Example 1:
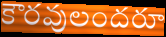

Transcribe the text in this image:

కౌరవులందరూ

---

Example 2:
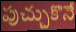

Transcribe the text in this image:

పుచ్చుకొనే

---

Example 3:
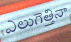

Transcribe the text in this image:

ఎలుగెత్తినా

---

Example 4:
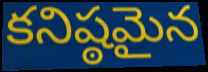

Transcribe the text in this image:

కనిష్ఠమైన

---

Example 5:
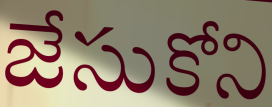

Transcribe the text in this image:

జేసుకోని